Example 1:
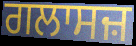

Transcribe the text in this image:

ਗਲਾਸਜ਼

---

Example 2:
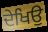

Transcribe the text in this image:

ਦੇਖਿਉ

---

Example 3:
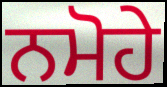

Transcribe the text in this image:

ਨਮੋਹੇ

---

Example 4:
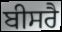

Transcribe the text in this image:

ਬੀਸਰੈ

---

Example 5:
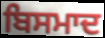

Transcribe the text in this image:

ਬਿਸਮਾਦ